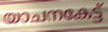
യാചനകേട്ട്